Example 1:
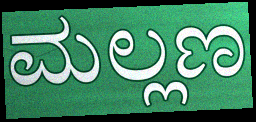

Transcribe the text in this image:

ಮಲ್ಲಣ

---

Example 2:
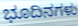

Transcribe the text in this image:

ಭೂದಿನಗಳು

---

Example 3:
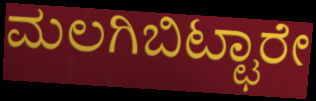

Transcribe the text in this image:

ಮಲಗಿಬಿಟ್ಟಾರೇ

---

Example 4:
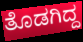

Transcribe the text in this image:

ತೊಡಗಿದ್ದ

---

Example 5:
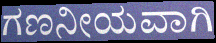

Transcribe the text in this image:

ಗಣನೀಯವಾಗಿ